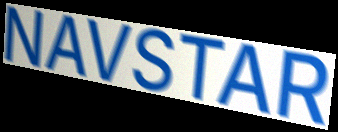
NAVSTAR